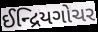
ઈન્દ્રિયગોચર